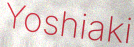
Yoshiaki